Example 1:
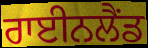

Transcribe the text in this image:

ਰਾਈਨਲੈਂਡ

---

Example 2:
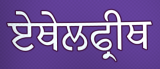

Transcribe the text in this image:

ਏਥੇਲਫ੍ਰੀਥ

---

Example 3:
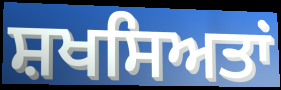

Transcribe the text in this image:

ਸ਼ਖਸਿਅਤਾਂ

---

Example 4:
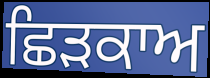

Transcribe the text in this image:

ਛਿੜਕਾਅ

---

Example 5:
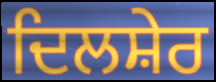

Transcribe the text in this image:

ਦਿਲਸ਼ੇਰ